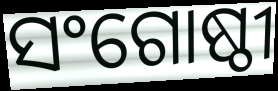
ସଂଗୋଷ୍ଠୀ